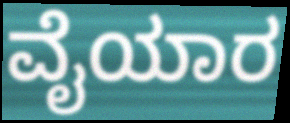
ವೈಯಾರ